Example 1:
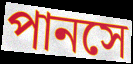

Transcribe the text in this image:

পানসে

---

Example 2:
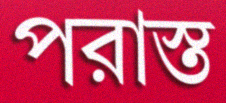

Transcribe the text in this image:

পরাস্ত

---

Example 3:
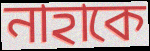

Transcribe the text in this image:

নাহাকে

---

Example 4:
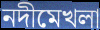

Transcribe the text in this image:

নদীমেখলা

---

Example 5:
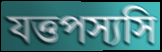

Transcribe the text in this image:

যত্তপস্যসি